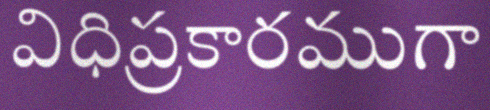
విధిప్రకారముగా